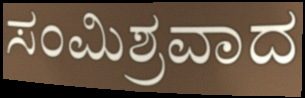
ಸಂಮಿಶ್ರವಾದ